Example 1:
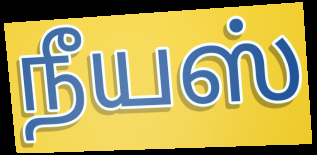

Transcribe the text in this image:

நீயஸ்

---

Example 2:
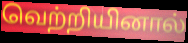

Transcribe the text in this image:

வெற்றியினால்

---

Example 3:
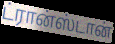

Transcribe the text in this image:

ட்ரான்ஸ்டான்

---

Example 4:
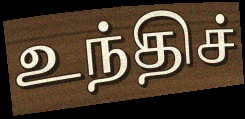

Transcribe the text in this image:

உந்திச்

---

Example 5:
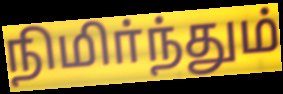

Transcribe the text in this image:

நிமிர்ந்தும்